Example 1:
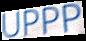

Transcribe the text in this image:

UPPP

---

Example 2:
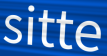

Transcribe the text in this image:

sitte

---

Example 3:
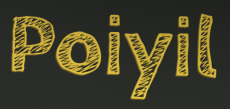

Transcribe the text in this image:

Poiyil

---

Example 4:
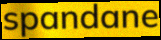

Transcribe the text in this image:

spandane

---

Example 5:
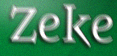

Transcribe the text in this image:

Zeke